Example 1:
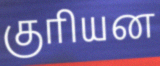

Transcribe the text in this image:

குரியன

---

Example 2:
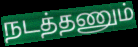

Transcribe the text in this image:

நடத்தணும்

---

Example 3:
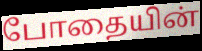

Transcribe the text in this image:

போதையின்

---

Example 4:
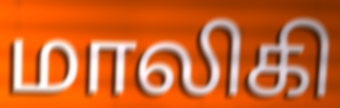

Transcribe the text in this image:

மாலிகி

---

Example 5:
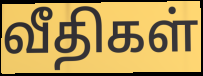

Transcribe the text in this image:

வீதிகள்